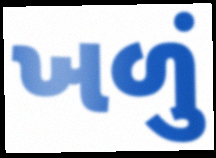
ખળું